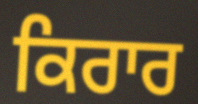
ਕਿਰਾਰ